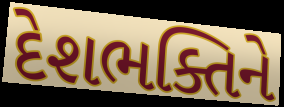
દેશભક્તિને